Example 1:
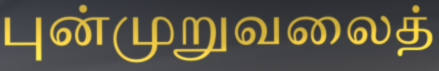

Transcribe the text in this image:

புன்முறுவலைத்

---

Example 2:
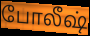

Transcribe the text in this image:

போலீஷ்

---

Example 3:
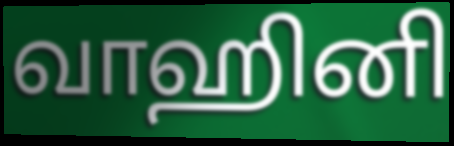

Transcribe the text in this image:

வாஹினி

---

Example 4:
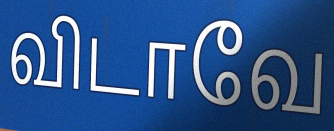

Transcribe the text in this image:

விடாவே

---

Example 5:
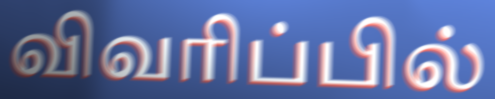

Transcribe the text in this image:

விவரிப்பில்